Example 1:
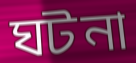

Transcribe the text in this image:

ঘটনা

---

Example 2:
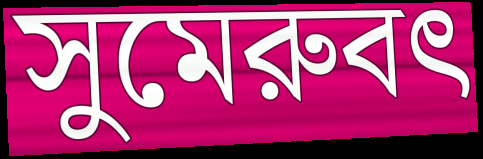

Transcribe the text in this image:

সুমেরুবৎ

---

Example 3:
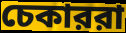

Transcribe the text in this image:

চেকাররা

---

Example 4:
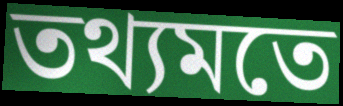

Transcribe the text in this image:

তথ্যমতে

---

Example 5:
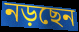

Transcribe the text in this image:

নড়ছেন